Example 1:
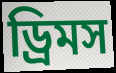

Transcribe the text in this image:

ড্রিমস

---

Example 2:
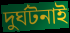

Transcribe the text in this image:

দুর্ঘটনাই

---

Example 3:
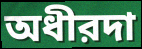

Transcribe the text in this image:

অধীরদা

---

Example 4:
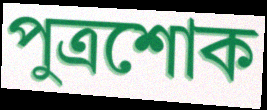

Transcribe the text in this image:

পুত্রশোক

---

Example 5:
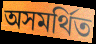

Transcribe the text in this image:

অসমর্থিত